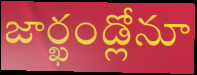
జార్ఖండ్లోనూ